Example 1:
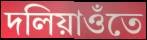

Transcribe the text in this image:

দলিয়াওঁতে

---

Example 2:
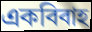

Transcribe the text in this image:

একবিবাহ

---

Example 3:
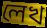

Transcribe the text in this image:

লেখ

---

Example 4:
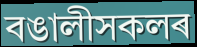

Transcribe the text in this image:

বঙালীসকলৰ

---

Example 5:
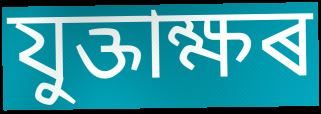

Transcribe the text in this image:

যুক্তাক্ষৰ